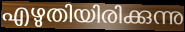
എഴുതിയിരിക്കുന്നു